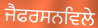
ਜੈਫਰਸਨਵਿਲੇ